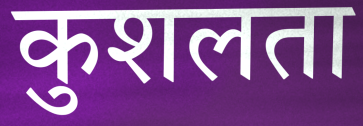
कुशलता